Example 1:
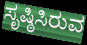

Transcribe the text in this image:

ಸೃಷ್ಠಿಸಿರುವ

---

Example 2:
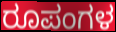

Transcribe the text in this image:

ರೂಪಂಗಳ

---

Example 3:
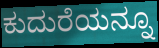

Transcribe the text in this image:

ಕುದುರೆಯನ್ನೂ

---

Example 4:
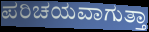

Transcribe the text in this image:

ಪರಿಚಯವಾಗುತ್ತಾ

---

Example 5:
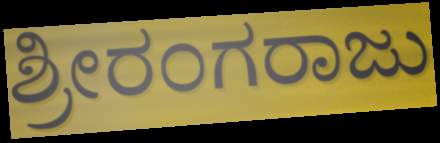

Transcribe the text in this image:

ಶ್ರೀರಂಗರಾಜು